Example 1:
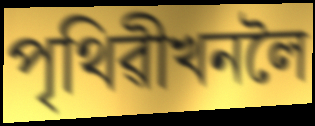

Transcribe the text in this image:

পৃথিৱীখনলৈ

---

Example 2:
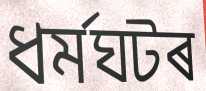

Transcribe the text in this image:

ধৰ্মঘটৰ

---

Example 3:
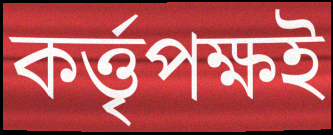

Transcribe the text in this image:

কৰ্ত্তৃপক্ষই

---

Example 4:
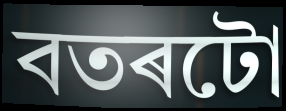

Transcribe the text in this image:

বতৰটো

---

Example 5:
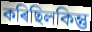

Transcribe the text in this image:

কৰিছিলকিন্তু